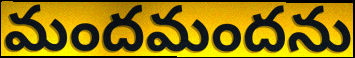
మందమందను